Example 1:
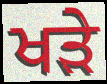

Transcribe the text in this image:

ਖੜੇ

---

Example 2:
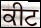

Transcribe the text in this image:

ਕੀਟ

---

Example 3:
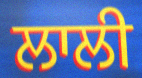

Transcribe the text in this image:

ਲਾਲੀ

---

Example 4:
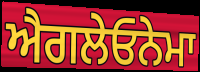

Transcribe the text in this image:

ਐਗਲੇਓਨੇਮਾ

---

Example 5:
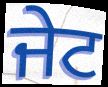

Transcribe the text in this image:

ਜੇਟ